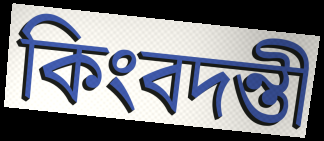
কিংবদন্তী